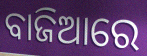
ବାଜିଆରେ